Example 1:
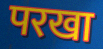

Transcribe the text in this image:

परखा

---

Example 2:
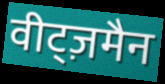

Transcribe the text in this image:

वीट्ज़मैन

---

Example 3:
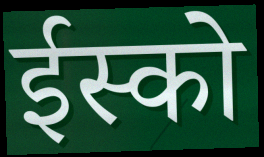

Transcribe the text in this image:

ईस्को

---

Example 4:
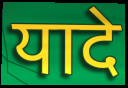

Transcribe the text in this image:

यादे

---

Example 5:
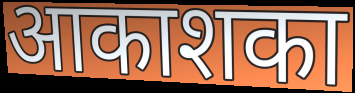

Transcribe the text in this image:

आकाशका